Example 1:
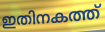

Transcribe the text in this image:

ഇതിനകത്ത്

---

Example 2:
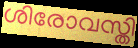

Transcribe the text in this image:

ശിരോവസ്തി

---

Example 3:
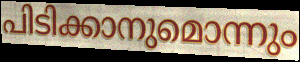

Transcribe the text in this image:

പിടിക്കാനുമൊന്നും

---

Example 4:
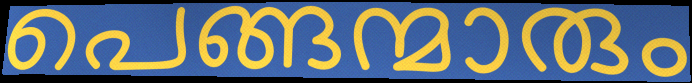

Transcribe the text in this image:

പെങ്ങന്മാരും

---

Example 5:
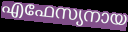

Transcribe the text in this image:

എഫേസ്യനായ